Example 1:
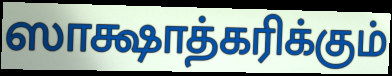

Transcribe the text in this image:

ஸாக்ஷாத்கரிக்கும்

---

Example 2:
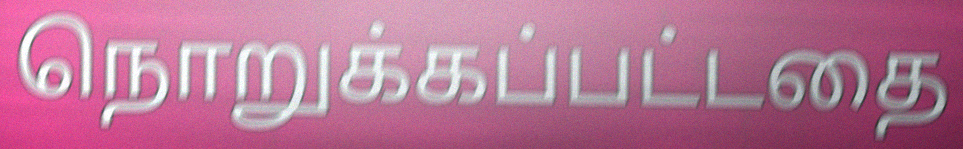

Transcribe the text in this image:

நொறுக்கப்பட்டதை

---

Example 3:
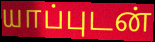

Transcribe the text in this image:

யாப்புடன்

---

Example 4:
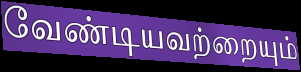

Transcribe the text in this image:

வேண்டியவற்றையும்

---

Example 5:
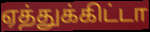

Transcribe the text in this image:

ஏத்துக்கிட்டா